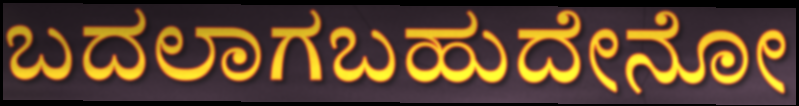
ಬದಲಾಗಬಹುದೇನೋ